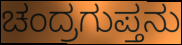
ಚಂದ್ರಗುಪ್ತನು